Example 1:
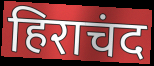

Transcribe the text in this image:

हिराचंद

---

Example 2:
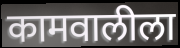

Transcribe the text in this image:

कामवालीला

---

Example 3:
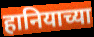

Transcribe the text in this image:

हानियाच्या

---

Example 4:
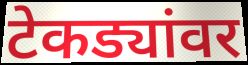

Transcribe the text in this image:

टेकड्यांवर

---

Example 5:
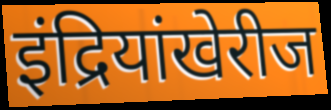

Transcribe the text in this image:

इंद्रियांखेरीज